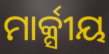
ମାର୍କ୍ସୀୟ